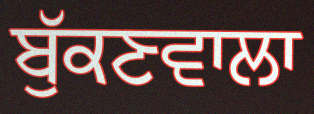
ਬੁੱਕਣਵਾਲਾ